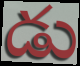
డు